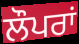
ਲੌਪਰਾਂ